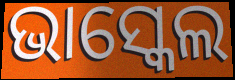
ଭାସ୍କେଲ